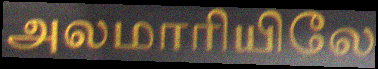
அலமாரியிலே